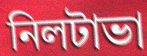
নিলটাভা